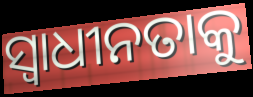
ସ୍ଵାଧୀନତାକୁ